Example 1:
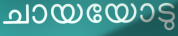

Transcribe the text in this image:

ചായയോടു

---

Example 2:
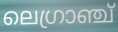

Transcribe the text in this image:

ലെഗ്രാഞ്ച്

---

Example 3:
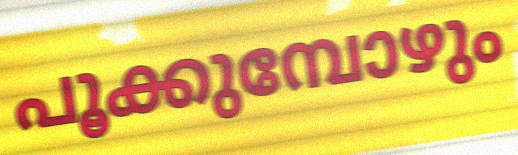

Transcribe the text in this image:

പൂക്കുമ്പോഴും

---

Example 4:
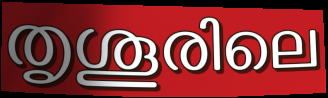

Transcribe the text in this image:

തൃശൂരിലെ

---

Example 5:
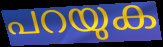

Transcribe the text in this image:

പറയുക